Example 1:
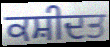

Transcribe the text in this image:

ਕਸ਼ੀਦਤ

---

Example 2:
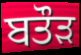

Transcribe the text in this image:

ਬਤੌੜ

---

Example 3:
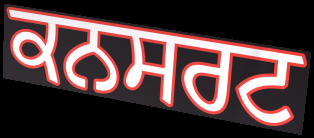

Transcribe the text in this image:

ਕਨਸਰਟ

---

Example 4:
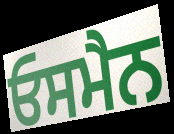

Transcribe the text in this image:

ਓਸਮੈਨ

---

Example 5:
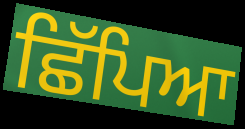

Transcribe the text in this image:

ਛਿੱਪਿਆ